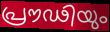
പ്രൗഢിയും